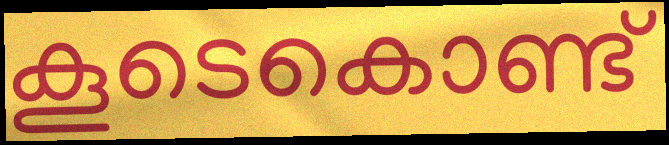
കൂടെകൊണ്ട്